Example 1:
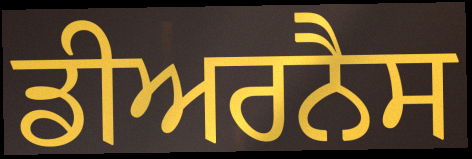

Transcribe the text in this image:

ਡੀਅਰਨੈਸ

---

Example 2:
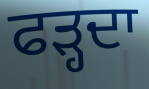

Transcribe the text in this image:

ਫੜ੍ਹਦਾ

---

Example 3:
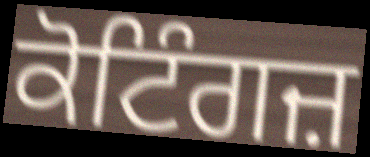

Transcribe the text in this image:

ਕੋਟਿੰਗਜ਼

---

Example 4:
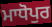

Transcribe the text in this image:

ਮਾਧੋਪੁਰ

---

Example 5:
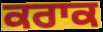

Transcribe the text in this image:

ਕਰਾਕ